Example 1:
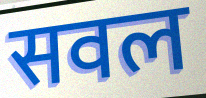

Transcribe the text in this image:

सवल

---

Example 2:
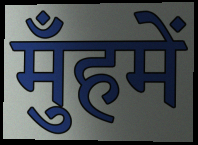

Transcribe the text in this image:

मुँहमें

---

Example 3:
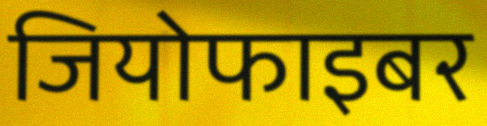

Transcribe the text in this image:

जियोफाइबर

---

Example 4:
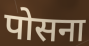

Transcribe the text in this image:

पोसना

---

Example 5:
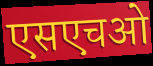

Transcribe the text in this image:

एसएचओ